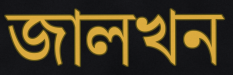
জালখন